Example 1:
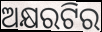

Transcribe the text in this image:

ଅକ୍ଷରଟିର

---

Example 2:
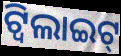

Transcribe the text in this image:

ଟ୍ୱିଲାଇଟ୍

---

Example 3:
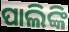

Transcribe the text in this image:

ପାଲିଙ୍କି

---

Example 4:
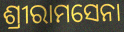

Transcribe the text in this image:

ଶ୍ରୀରାମସେନା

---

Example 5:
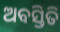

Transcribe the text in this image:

ଅବସ୍ତିତି